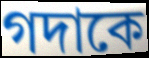
গদাকে